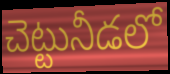
చెట్టునీడలో